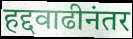
हद्दवाढीनंतर